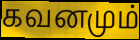
கவனமும்